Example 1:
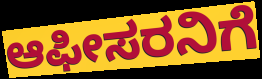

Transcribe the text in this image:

ಆಫೀಸರನಿಗೆ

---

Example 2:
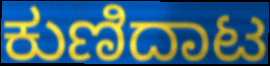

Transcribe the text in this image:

ಕುಣಿದಾಟ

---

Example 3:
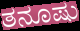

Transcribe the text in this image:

ತನೂಷು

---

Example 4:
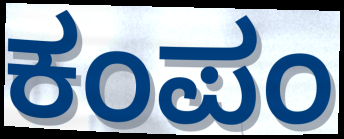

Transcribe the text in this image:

ಕಂಪಂ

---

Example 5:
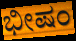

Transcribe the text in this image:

ಭೀಷಂ